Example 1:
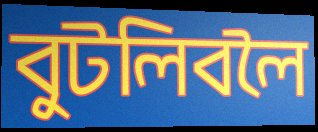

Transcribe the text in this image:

বুটলিবলৈ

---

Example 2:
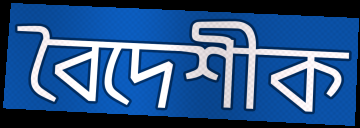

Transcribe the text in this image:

বৈদেশীক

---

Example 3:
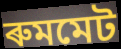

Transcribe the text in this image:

ৰুমমেট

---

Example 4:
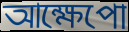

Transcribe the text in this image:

আক্ষেপো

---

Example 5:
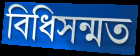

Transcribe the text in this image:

বিধিসন্মত